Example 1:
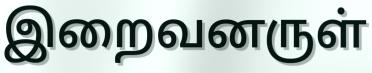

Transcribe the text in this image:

இறைவனருள்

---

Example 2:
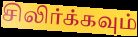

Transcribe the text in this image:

சிலிர்க்கவும்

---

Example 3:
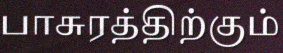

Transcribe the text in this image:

பாசுரத்திற்கும்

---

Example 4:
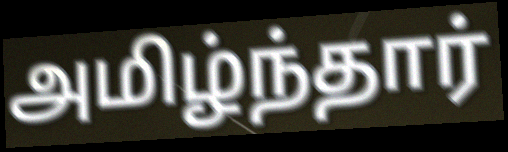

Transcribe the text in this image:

அமிழ்ந்தார்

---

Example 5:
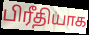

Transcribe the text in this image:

பிரீதியாக